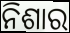
ନିଶାର